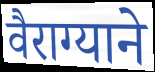
वैराग्याने